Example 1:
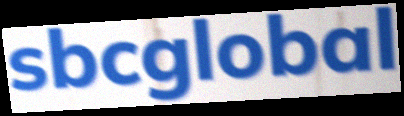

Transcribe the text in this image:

sbcglobal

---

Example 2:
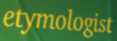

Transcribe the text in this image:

etymologist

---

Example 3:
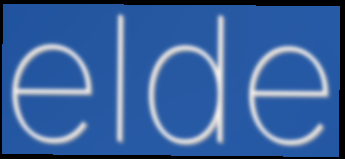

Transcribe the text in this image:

elde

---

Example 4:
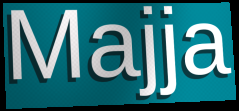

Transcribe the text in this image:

Majja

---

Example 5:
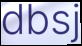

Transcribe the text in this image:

dbsj